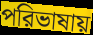
পরিভাষায়